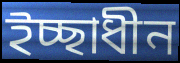
ইচ্ছাধীন